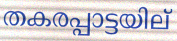
തകരപ്പാട്ടയില്